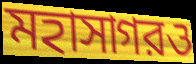
মহাসাগরও